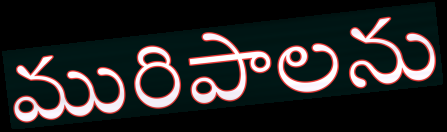
మురిపాలను